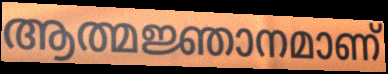
ആത്മജ്ഞാനമാണ്